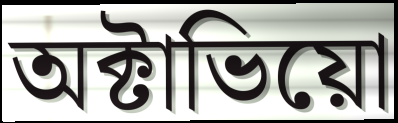
অক্টাভিয়ো